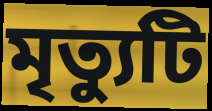
মৃত্যুটি